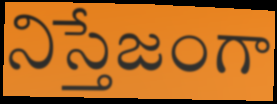
నిస్తేజంగా